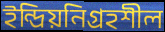
ইন্দ্রিয়নিগ্রহশীল